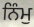
ਨਿੰਮੁ